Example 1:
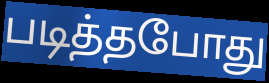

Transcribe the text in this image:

படித்தபோது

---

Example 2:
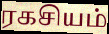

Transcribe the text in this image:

ரகசியம்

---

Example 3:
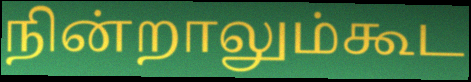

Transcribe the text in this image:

நின்றாலும்கூட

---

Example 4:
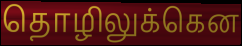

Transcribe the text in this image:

தொழிலுக்கென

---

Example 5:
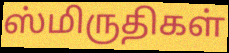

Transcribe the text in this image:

ஸ்மிருதிகள்